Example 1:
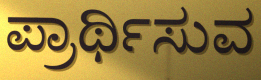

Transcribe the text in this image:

ಪ್ರಾರ್ಥಿಸುವ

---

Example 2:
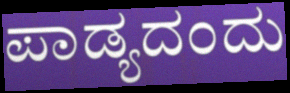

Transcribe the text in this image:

ಪಾಡ್ಯದಂದು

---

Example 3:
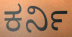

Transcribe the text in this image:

ಕರ್ನಿ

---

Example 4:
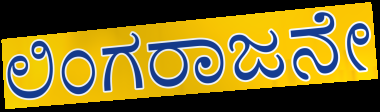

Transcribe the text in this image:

ಲಿಂಗರಾಜನೇ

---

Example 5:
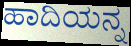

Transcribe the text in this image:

ಹಾದಿಯನ್ನ